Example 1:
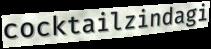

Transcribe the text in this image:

cocktailzindagi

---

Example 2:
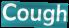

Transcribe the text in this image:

Cough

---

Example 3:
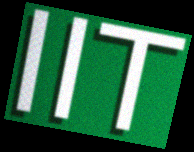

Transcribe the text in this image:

IIT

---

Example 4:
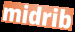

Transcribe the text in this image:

midrib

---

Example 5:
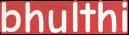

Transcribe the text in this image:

bhulthi